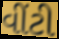
વીંટી